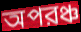
অপরঞ্চ